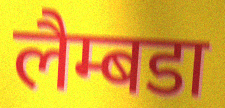
लैम्बडा